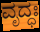
ವೃದ್ಧಃ